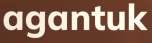
agantuk